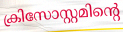
ക്രിസോസ്റ്റമിന്റെ